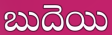
బుదెయి